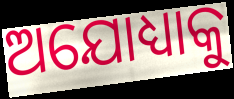
ଅଯୋଧ୍ୟାକୁ